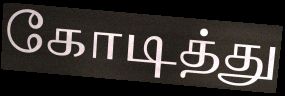
கோடித்து